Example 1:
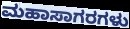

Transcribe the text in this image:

ಮಹಾಸಾಗರಗಳು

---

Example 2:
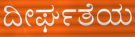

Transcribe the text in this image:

ದೀರ್ಘತೆಯ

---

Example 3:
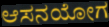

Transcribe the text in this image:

ಆಸನಯೋಗ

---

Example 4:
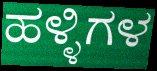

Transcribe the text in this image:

ಹಳ್ಳಿಗಳ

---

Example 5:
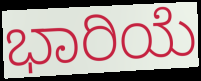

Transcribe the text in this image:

ಭಾರಿಯೆ